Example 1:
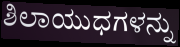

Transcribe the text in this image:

ಶಿಲಾಯುಧಗಳನ್ನು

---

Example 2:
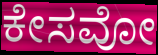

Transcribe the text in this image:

ಕೇಸವೋ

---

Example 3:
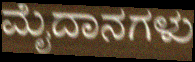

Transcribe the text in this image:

ಮೈದಾನಗಳು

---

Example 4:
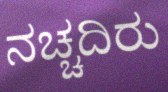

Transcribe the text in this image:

ನಚ್ಚದಿರು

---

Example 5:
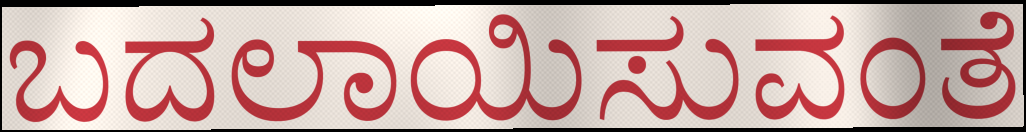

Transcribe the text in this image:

ಬದಲಾಯಿಸುವಂತೆ